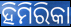
ହିମିରିକା